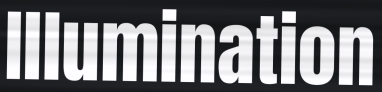
Illumination